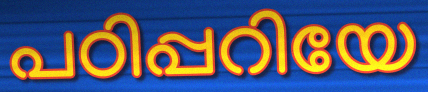
പഠിപ്പറിയേ